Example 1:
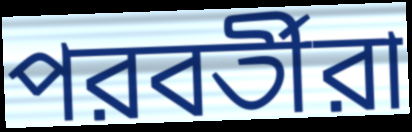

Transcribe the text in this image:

পরবর্তীরা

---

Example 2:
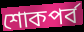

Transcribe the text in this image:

শোকপর্ব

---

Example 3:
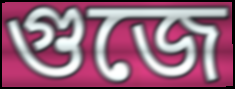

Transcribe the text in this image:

গুজে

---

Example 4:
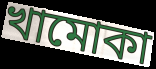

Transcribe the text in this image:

খামোকা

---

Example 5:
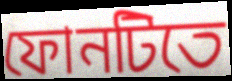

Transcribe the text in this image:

ফোনটিতে